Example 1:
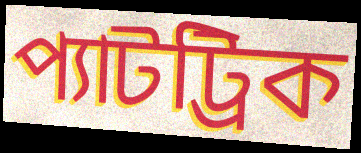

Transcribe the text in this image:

প্যাটট্রিক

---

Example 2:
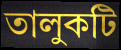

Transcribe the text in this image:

তালুকটি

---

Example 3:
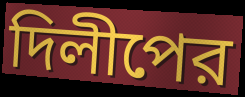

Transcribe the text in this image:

দিলীপের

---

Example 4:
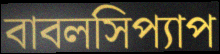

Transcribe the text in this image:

বাবলসিপ্যাপ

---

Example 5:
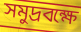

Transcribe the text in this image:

সমুদ্রবক্ষে